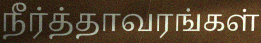
நீர்த்தாவரங்கள்